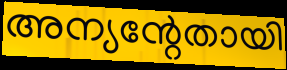
അന്യന്റേതായി